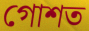
গোশত